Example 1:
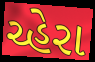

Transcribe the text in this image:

ચ્હેરા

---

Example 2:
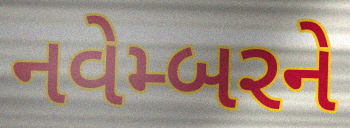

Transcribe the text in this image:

નવેમ્બરને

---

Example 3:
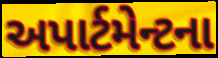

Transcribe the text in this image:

અપાર્ટમેન્ટના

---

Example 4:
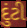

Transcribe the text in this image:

દુંટી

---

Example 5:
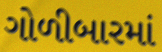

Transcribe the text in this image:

ગોળીબારમાં